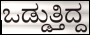
ಒಡ್ಡುತ್ತಿದ್ದ